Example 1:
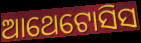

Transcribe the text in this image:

ଆଥେଟୋସିସ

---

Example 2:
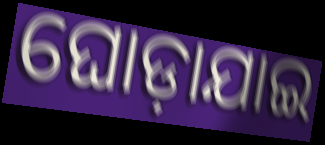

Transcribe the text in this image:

ଘୋଡ଼ାଯାଇ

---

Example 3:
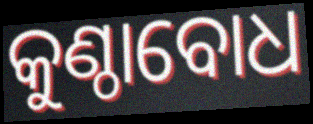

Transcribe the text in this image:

କୁଣ୍ଠାବୋଧ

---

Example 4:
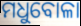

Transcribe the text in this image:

ମଧୁବୋଳା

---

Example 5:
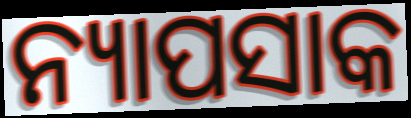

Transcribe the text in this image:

ନ୍ୟାପସାକ